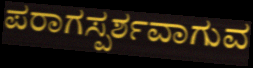
ಪರಾಗಸ್ಪರ್ಶವಾಗುವ